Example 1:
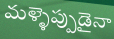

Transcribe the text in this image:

మళ్ళెప్పుడైనా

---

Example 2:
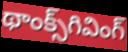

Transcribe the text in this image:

థాంక్స్‌గివింగ్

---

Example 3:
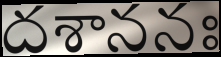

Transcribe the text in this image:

దశాననః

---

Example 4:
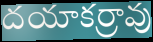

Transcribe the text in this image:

దయాకర్రావు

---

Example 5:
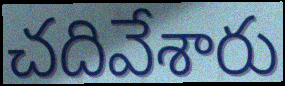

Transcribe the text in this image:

చదివేశారు